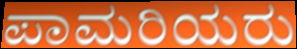
ಪಾಮರಿಯರು